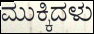
ಮುಕ್ಕಿದಳು